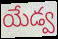
యేడ్వ